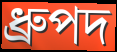
ধ্রুপদ